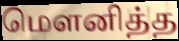
மௌனித்த